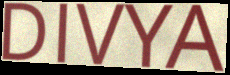
DIVYA